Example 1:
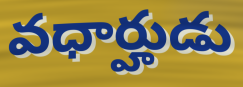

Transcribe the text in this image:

వధార్హుడు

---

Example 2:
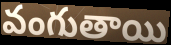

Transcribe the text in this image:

వంగుతాయి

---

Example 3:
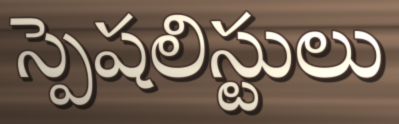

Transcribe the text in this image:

స్పెషలిస్టులు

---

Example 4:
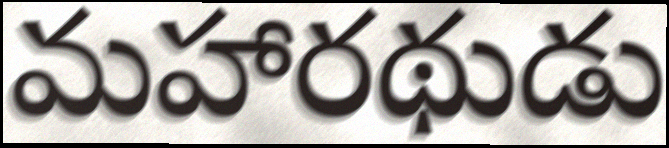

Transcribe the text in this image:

మహారథుడు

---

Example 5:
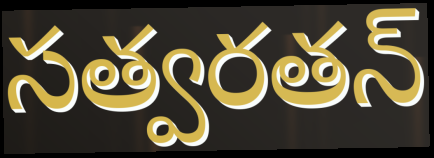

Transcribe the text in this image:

సత్వరతన్